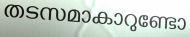
തടസമാകാറുണ്ടോ